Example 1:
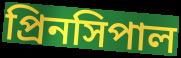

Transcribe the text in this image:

প্রিনসিপাল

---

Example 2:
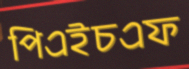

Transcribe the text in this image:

পিএইচএফ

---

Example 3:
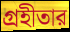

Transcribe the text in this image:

গ্রহীতার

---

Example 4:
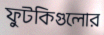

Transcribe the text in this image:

ফুটকিগুলোর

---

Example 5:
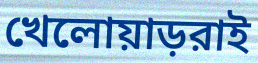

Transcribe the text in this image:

খেলোয়াড়রাই